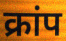
क्रांप